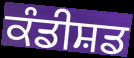
ਕੰਡੀਸ਼ਡ